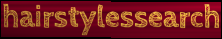
hairstylessearch